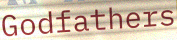
Godfathers